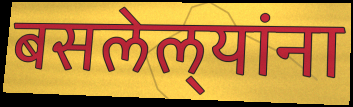
बसलेल्यांना